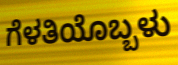
ಗೆಳತಿಯೊಬ್ಬಳು